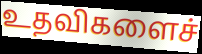
உதவிகளைச்